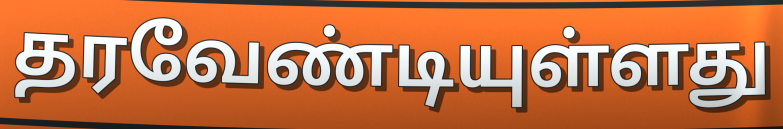
தரவேண்டியுள்ளது